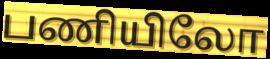
பணியிலோ